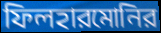
ফিলহারমোনির